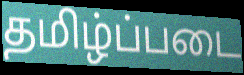
தமிழ்ப்படை